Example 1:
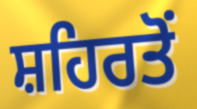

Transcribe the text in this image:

ਸ਼ਹਿਰਤੋਂ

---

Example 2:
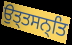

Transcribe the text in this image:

ਉਤ੍ਤਸਨ੍ਤਿ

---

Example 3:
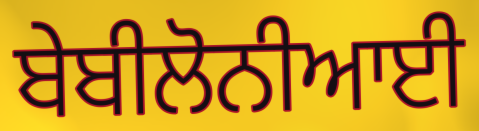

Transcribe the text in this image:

ਬੇਬੀਲੋਨੀਆਈ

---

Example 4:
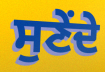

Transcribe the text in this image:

ਸੁਣੇਂਦੇ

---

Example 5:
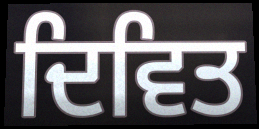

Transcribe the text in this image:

ਦਿਵਿਤ